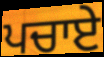
ਪਚਾਏ